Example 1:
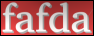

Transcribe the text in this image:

fafda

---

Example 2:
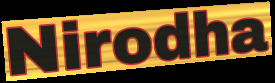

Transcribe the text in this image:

Nirodha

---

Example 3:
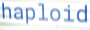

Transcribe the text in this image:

haploid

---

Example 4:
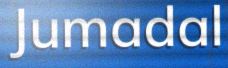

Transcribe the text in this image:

Jumadal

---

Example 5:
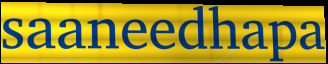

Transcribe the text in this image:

saaneedhapa